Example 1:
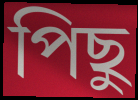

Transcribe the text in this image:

পিছু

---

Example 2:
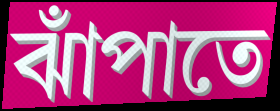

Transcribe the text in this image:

ঝাঁপাতে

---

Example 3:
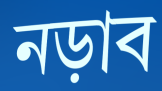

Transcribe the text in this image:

নড়াব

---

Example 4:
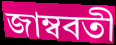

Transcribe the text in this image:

জাম্ববতী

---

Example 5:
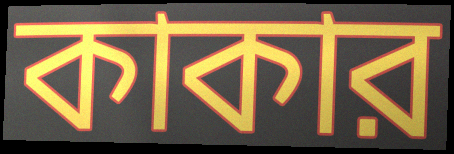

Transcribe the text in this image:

কাকার